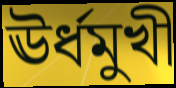
ঊৰ্ধমুখী